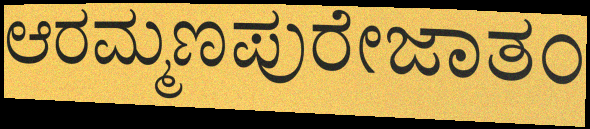
ಆರಮ್ಮಣಪುರೇಜಾತಂ